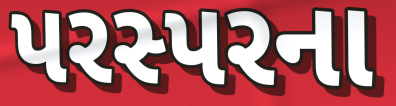
પરસ્પરના